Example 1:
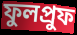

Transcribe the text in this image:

ফুলপ্রুফ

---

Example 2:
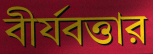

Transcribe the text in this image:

বীর্যবত্তার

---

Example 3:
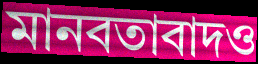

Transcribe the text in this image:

মানবতাবাদও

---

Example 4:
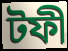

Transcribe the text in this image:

টফী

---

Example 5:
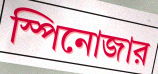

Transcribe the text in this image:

স্পিনোজার